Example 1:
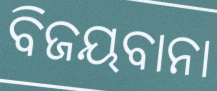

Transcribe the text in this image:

ବିଜୟବାନା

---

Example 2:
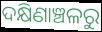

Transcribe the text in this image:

ଦକ୍ଷିଣାଞ୍ଚଳରୁ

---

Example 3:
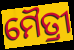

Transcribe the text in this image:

ମୈତ୍ରୀ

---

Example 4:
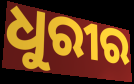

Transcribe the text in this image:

ଧୁରୀର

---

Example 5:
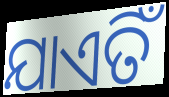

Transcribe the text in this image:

ଯାଏତିଁ